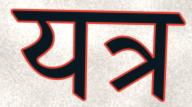
यत्र